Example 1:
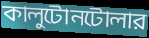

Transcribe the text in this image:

কালুটোনটোলার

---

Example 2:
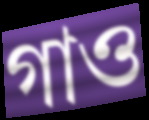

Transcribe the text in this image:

গাও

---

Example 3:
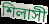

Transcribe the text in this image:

শিলাসী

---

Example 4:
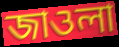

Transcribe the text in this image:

জাওলা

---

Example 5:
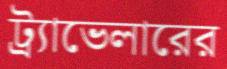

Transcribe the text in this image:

ট্র্যাভেলারের